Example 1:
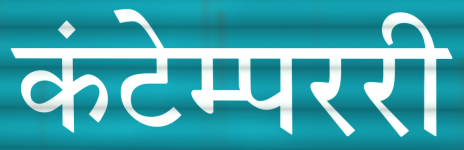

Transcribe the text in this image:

कंटेम्पररी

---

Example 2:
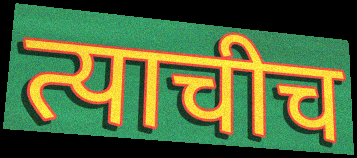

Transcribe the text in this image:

त्याचीच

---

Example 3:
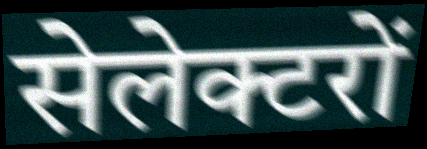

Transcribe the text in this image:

सेलेक्टरों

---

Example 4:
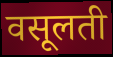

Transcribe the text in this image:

वसूलती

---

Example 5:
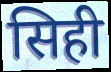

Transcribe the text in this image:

सिही